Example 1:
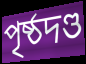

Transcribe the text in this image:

পৃষ্ঠদণ্ড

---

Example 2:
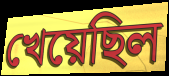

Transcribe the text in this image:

খেয়েছিল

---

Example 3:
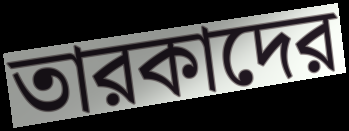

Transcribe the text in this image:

তারকাদের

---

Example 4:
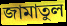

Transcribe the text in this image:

জামাতুল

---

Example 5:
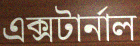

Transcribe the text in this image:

এক্সটার্নাল